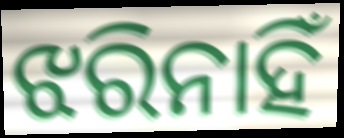
ଝରିନାହିଁ